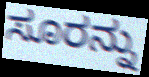
ಸೂರನ್ನು